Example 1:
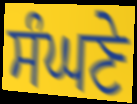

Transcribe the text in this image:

ਸੰਘਣੇ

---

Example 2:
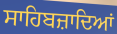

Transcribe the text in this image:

ਸਾਹਿਬਜ਼ਾਦਿਆਂ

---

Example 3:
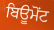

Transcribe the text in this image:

ਬਿਊਮੋਂਟ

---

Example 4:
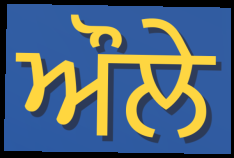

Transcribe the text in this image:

ਔਲੇ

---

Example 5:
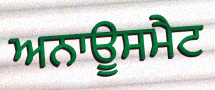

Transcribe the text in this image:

ਅਨਾਊਸਮੈਟ